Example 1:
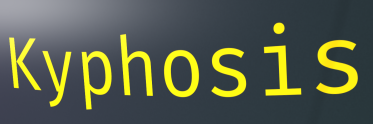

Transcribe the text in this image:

Kyphosis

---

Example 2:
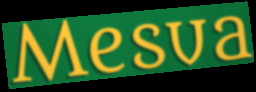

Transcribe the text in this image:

Mesua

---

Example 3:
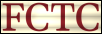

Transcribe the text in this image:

FCTC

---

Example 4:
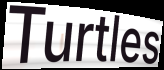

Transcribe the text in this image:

Turtles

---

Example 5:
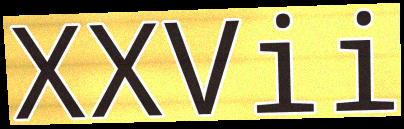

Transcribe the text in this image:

XXVii